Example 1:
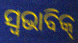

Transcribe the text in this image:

ସ୍ୱଭାବିକ୍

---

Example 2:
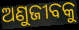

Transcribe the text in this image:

ଅଣୁଜୀବକୁ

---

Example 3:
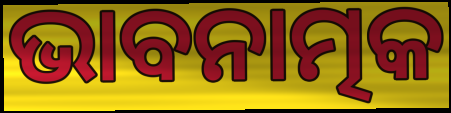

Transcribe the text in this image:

ଭାବନାତ୍ମକ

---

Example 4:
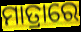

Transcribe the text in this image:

ମାତ୍ରାରେ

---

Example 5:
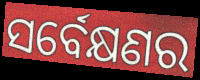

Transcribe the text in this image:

ସର୍ବେକ୍ଷଣର